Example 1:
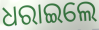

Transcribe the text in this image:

ଧରାଇଲେ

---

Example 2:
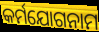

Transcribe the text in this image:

କର୍ମଯୋଗନାମ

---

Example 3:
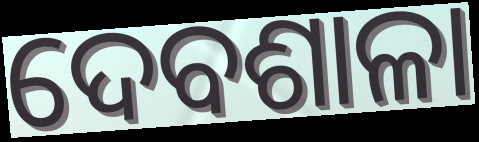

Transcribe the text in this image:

ଦେବଶାଳା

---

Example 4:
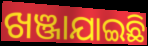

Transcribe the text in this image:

ଖଞ୍ଜାଯାଇଛି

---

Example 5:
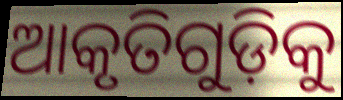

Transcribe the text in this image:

ଆକୃତିଗୁଡ଼ିକୁ